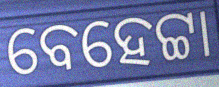
ବେହେଟ୍ଟା